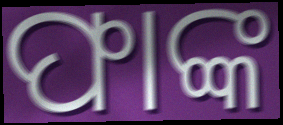
ଫାଙ୍କ